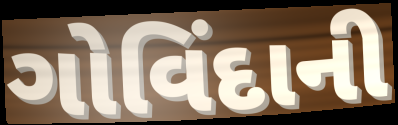
ગોવિંદાની